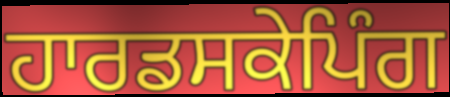
ਹਾਰਡਸਕੇਪਿੰਗ